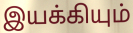
இயக்கியும்